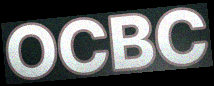
OCBC